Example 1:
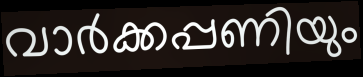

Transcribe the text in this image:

വാർക്കപ്പണിയും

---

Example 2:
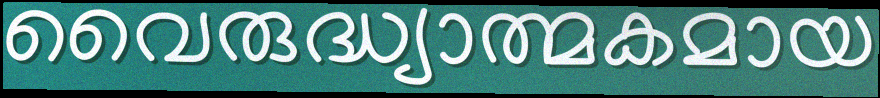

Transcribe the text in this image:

വൈരുദ്ധ്യാത്മകമായ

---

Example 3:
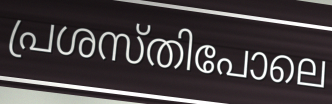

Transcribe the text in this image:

പ്രശസ്തിപോലെ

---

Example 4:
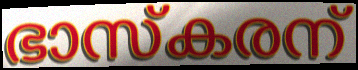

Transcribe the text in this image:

ഭാസ്‌കരന്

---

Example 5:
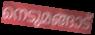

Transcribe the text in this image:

നെടുമങ്ങാട്